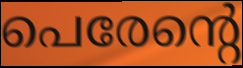
പെരേന്റെ